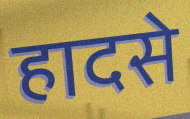
हादसे